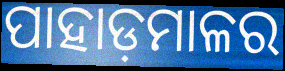
ପାହାଡ଼ମାଳର